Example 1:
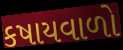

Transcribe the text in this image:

કષાયવાળો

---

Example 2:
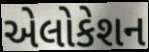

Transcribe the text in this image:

એલોકેશન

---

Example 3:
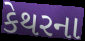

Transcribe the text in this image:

કેથરના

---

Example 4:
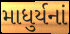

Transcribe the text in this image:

માધુર્યનાં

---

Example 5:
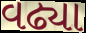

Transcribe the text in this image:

વઢ્યા